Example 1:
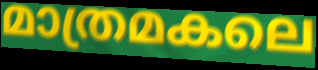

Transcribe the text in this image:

മാത്രമകലെ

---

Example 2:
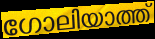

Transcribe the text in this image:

ഗോലിയാത്ത്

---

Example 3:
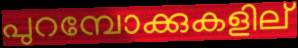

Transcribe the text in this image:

പുറമ്പോക്കുകളില്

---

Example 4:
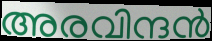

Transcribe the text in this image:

അരവിന്ദൻ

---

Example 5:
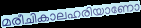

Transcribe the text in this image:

മരീചികാലഹരിയാണോ